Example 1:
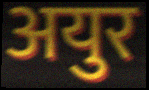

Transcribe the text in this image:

अयुर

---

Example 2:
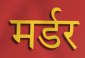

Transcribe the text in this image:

मर्डर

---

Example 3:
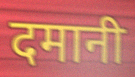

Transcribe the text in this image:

दमानी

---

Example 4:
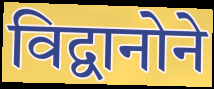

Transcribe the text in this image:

विद्वानोने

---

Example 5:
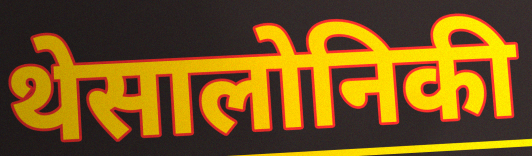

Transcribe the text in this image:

थेसालोनिकी